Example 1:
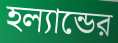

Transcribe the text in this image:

হল্যান্ডের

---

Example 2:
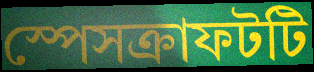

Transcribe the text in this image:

স্পেসক্রাফটটি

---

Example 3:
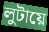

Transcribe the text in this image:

লুটায়ে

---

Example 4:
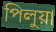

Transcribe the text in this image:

পিলুয়া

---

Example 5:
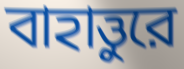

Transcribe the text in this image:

বাহাত্তুরে